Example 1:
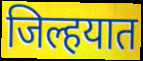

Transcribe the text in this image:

जिल्हयात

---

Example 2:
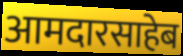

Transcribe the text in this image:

आमदारसाहेब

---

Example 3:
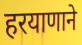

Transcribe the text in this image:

हरयाणाने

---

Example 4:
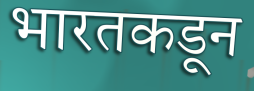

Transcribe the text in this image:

भारतकडून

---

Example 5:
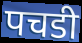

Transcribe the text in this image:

पचडी